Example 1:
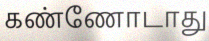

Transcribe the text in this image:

கண்ணோடாது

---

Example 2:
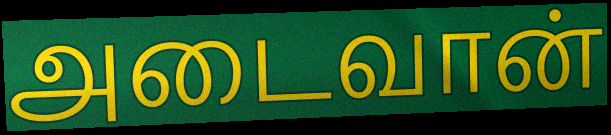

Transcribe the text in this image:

அடைவான்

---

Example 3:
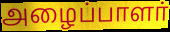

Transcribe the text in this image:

அழைப்பாளர்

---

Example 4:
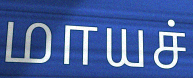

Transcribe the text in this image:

மாயச்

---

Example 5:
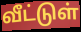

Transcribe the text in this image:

வீட்டுள்